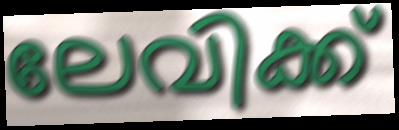
ലേവിക്ക്